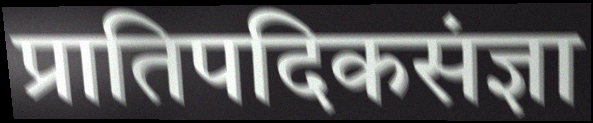
प्रातिपदिकसंज्ञा